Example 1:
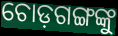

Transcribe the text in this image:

ଚୋଡ଼ଗଙ୍ଗଙ୍କୁ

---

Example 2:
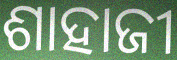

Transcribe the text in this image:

ଶାହାଜୀ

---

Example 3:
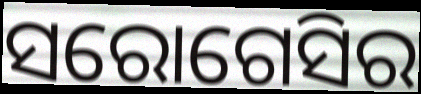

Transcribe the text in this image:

ସରୋଗେସିର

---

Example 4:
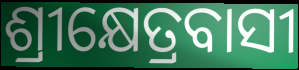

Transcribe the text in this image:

ଶ୍ରୀକ୍ଷେତ୍ରବାସୀ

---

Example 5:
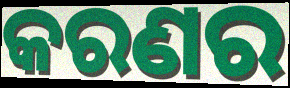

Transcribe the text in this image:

କରଣର